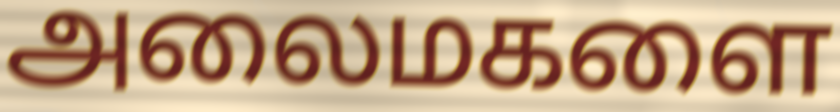
அலைமகளை